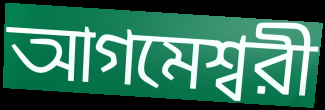
আগমেশ্বরী